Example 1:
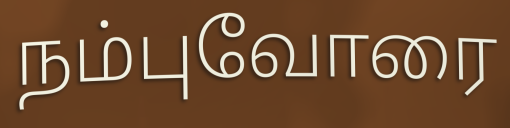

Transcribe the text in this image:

நம்புவோரை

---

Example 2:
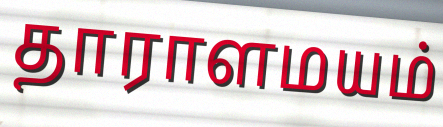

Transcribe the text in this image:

தாராளமயம்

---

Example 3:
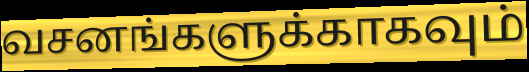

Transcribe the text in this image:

வசனங்களுக்காகவும்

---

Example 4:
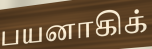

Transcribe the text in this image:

பயனாகிக்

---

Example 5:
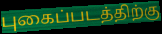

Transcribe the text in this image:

புகைப்படத்திற்கு